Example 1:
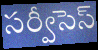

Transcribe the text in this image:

సర్వీసెస్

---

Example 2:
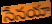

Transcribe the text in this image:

సేనయా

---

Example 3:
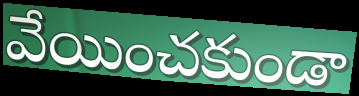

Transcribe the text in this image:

వేయించకుండా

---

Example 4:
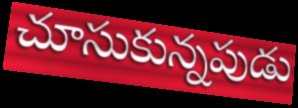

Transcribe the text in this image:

చూసుకున్నపుడు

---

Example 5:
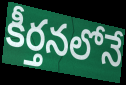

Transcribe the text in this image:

కీర్తనలోనే